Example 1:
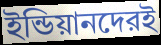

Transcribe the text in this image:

ইন্ডিয়ানদেরই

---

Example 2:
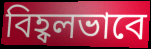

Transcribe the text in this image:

বিহ্বলভাবে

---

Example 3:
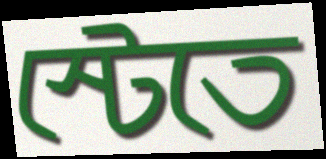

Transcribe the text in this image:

স্টেতে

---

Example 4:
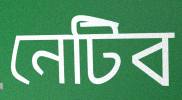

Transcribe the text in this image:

নেটিব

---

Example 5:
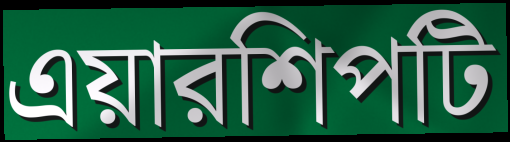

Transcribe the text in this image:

এয়ারশিপটি